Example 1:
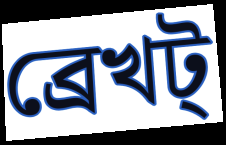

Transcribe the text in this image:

ব্রেখট্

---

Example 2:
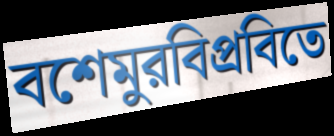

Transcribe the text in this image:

বশেমুরবিপ্রবিতে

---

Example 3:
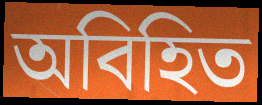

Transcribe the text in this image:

অবিহিত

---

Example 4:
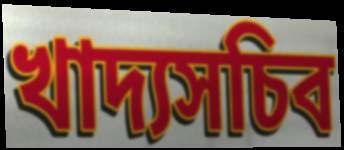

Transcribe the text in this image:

খাদ্যসচিব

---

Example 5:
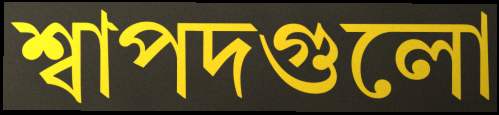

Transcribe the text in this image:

শ্বাপদগুলো